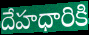
దేహధారికి